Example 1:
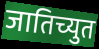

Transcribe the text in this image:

जातिच्युत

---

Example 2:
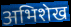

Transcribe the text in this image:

अभिशेख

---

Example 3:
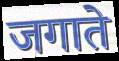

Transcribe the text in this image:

जगाते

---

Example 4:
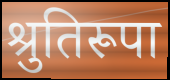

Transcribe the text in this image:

श्रुतिरूपा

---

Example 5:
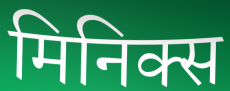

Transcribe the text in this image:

मिनिक्स